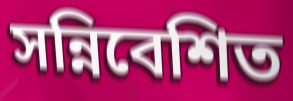
সন্নিবেশিত